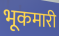
भूकमारी